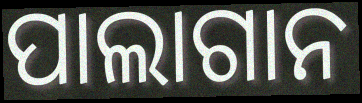
ପାଲାଗାନ